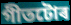
গীতটোৰ